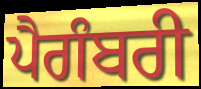
ਪੈਗੰਬਰੀ